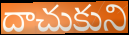
దాచుకుని